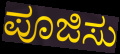
ಪೂಜಿಸು